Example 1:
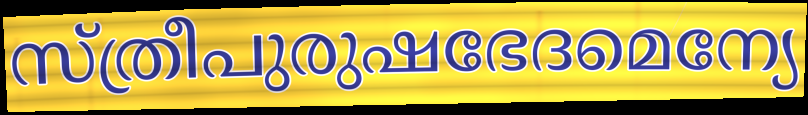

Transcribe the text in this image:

സ്ത്രീപുരുഷഭേദമെന്യേ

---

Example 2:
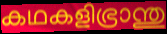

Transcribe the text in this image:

കഥകളിഭ്രാന്തു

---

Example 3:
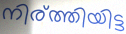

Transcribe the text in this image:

നിര്ത്തിയിട്ട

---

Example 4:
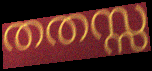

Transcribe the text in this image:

തതസ്സ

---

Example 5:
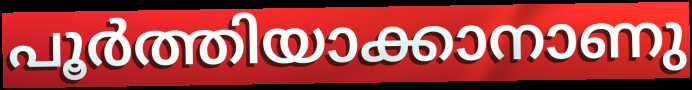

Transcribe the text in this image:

പൂർത്തിയാക്കാനാണു